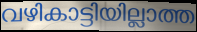
വഴികാട്ടിയില്ലാത്ത